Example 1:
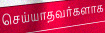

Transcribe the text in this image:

செய்யாதவர்களாக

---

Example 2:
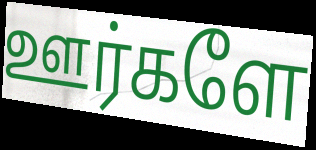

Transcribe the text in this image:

ஊர்களே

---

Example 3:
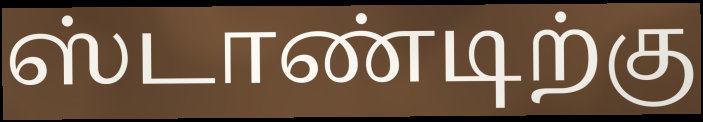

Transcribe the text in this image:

ஸ்டாண்டிற்கு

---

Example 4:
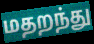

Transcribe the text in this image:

மதறந்து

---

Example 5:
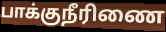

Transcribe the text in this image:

பாக்குநீரிணை